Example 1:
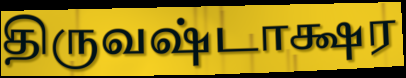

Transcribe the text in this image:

திருவஷ்டாக்ஷர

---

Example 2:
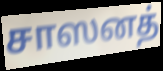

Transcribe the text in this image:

சாஸனத்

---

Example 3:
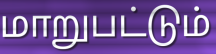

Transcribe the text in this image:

மாறுபட்டும்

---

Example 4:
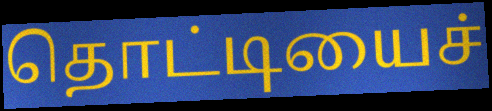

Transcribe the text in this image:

தொட்டியைச்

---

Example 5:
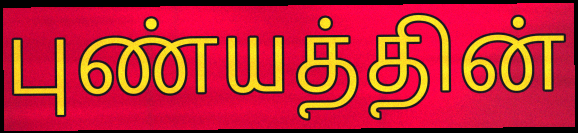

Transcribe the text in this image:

புண்யத்தின்